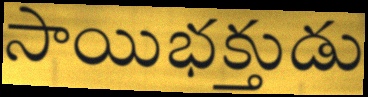
సాయిభక్తుడు